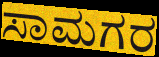
ಸಾಮಗರ